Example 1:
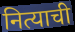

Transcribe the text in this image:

नित्याची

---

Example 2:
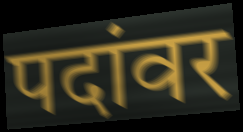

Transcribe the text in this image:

पदांवर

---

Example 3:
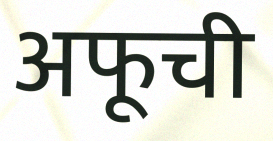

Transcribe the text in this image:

अफूची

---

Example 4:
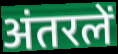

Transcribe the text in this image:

अंतरलें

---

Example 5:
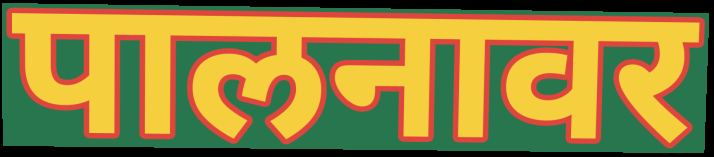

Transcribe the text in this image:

पालनावर